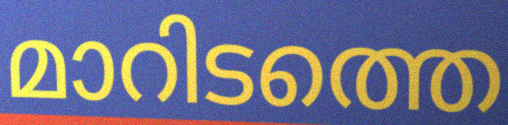
മാറിടത്തെ